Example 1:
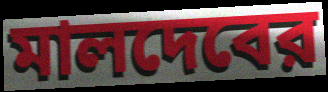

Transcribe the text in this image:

মালদেবের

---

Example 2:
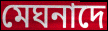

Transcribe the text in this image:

মেঘনাদে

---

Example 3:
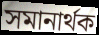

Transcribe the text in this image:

সমানার্থক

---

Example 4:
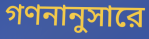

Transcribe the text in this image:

গণনানুসারে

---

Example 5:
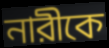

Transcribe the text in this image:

নারীকে